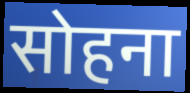
सोहना